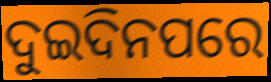
ଦୁଇଦିନପରେ